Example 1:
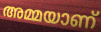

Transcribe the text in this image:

അമ്മയാണ്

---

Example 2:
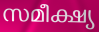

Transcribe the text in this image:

സമീക്ഷ്യ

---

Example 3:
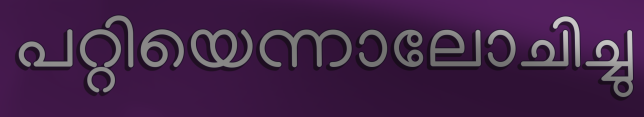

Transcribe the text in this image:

പറ്റിയെന്നാലോചിച്ചു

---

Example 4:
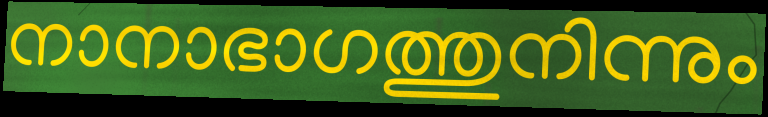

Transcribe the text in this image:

നാനാഭാഗത്തുനിന്നും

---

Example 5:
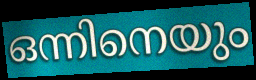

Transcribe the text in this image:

ഒന്നിനെയും